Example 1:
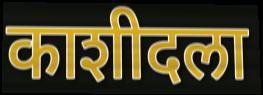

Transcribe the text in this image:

काशीदला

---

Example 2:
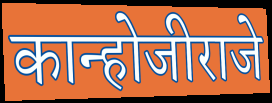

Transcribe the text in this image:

कान्होजीराजे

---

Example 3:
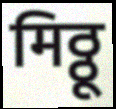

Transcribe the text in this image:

मिठ्ठू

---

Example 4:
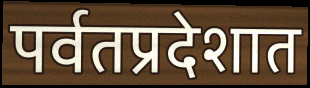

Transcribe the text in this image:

पर्वतप्रदेशात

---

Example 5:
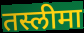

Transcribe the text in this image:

तस्लीमा